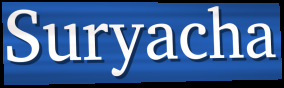
Suryacha